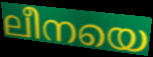
ലീനയെ